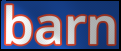
barn